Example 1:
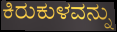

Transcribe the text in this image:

ಕಿರುಕುಳವನ್ನು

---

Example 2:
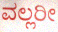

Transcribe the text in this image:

ವಲ್ಲರೀ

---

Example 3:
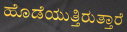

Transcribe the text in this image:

ಹೊಡೆಯುತ್ತಿರುತ್ತಾರೆ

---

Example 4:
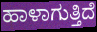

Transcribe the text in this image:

ಹಾಳಾಗುತ್ತಿದೆ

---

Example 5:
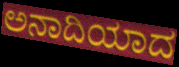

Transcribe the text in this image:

ಅನಾದಿಯಾದ